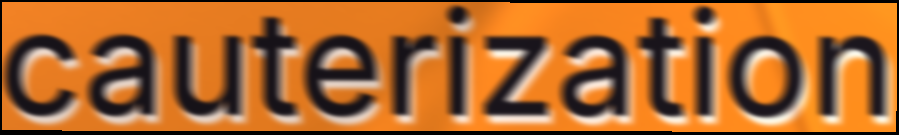
cauterization